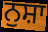
ਨੁਸ਼ਾ